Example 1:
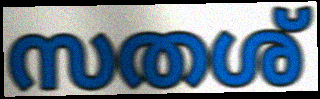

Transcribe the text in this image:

സതശ്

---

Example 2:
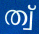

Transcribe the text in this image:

ത്വ്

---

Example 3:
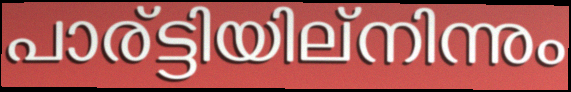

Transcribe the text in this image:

പാര്ട്ടിയില്നിന്നും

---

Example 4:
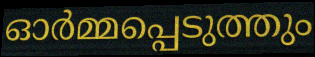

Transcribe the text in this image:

ഓർമ്മപ്പെടുത്തും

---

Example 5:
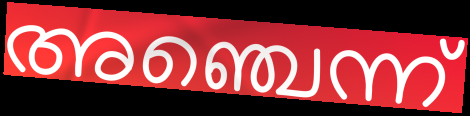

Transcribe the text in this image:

അഞ്ചെന്ന്